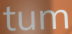
tum